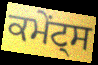
ਕਮੇਂਟ੍ਸ